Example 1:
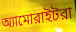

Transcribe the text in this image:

অ্যামোরাইটরা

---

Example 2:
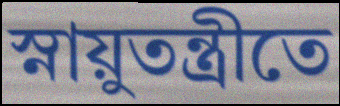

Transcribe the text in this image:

স্নায়ুতন্ত্রীতে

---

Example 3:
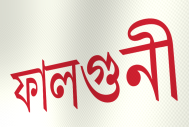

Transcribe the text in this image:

ফালগুনী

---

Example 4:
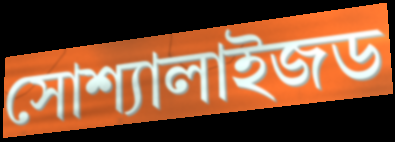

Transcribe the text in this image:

সোশ্যালাইজড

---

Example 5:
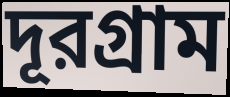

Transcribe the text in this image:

দূরগ্রাম